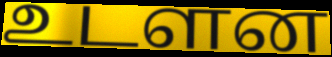
உடளன